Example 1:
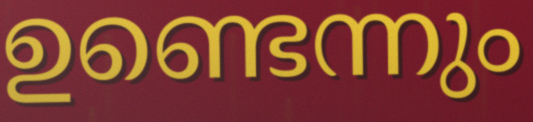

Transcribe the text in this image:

ഉണ്ടെന്നും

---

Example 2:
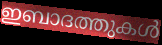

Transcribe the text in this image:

ഇബാദത്തുകൾ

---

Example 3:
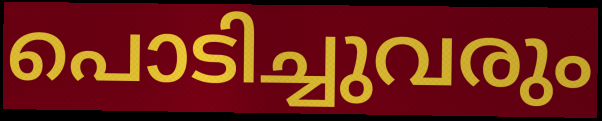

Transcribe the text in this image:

പൊടിച്ചുവരും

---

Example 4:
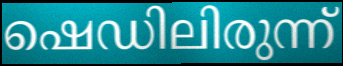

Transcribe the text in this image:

ഷെഡിലിരുന്ന്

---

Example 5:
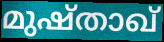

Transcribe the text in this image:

മുഷ്താഖ്